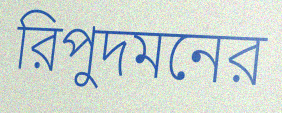
রিপুদমনের